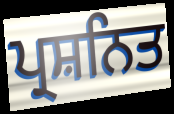
ਪ੍ਰਸ਼ਨਿਤ